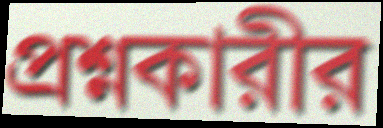
প্রশ্নকারীর